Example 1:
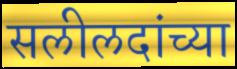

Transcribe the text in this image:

सलीलदांच्या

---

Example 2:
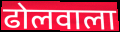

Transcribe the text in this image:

ढोलवाला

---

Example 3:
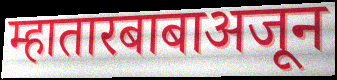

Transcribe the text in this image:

म्हातारबाबाअजून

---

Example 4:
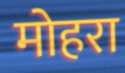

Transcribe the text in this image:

मोहरा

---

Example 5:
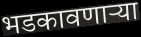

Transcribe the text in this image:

भडकावणाऱ्या